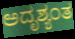
ಅದೃಶ್ಯಂತ